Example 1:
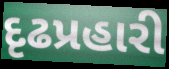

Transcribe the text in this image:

દૃઢપ્રહારી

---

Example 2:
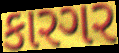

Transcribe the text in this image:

કારગર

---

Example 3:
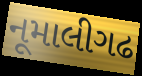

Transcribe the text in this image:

નૂમાલીગઢ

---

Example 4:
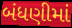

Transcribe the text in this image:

બંધણીમાં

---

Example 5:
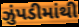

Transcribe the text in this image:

ઝુંપડીમાંથી